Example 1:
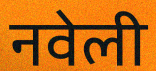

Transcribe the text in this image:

नवेली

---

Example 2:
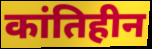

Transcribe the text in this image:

कांतिहीन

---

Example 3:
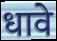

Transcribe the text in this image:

धावे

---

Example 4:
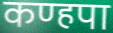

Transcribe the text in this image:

कण्हपा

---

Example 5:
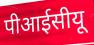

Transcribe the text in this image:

पीआईसीयू